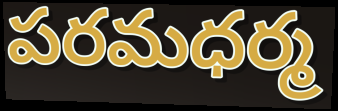
పరమధర్మ